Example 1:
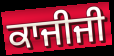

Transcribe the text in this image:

ਕਾਜੀਜੀ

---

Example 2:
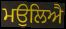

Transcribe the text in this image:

ਮਉਲਿਐ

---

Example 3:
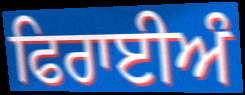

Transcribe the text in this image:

ਫਿਰਾਈਅੰ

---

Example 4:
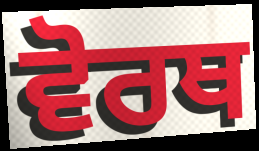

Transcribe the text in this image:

ਵੋਰਥ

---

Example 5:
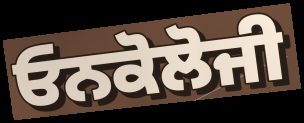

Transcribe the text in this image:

ਓਨਕੋਲੋਜੀ